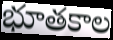
భూతకాల